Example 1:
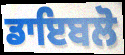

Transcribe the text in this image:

ਡਾਇਬਲੋ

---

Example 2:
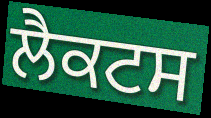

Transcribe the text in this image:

ਲੈਕਟਸ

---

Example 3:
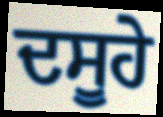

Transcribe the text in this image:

ਦਸੂਹੇ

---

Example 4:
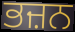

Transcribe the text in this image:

ਭਜ਼ਨ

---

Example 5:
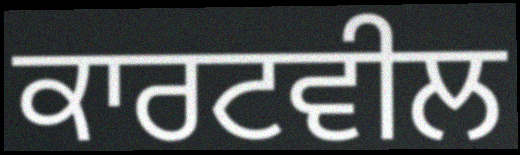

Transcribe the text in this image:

ਕਾਰਟਵੀਲ